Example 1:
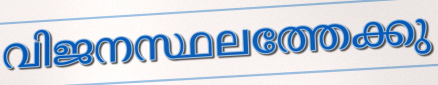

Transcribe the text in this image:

വിജനസ്ഥലത്തേക്കു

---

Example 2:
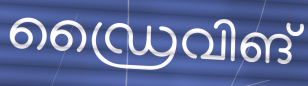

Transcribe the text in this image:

ഡ്രൈവിങ്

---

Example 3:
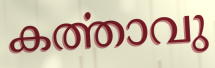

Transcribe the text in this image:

കൎത്താവു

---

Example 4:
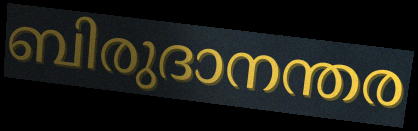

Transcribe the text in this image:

ബിരുദാനന്തര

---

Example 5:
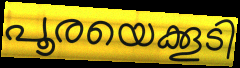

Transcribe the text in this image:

പൂരയെക്കൂടി